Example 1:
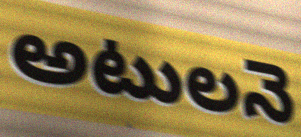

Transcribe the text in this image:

అటులనె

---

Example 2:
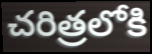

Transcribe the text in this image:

చరిత్రలోకి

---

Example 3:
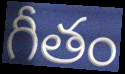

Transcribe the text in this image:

గీతం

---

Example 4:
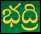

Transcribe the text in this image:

భద్రి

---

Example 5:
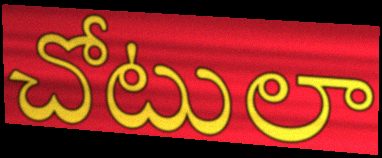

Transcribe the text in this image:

చోటులా